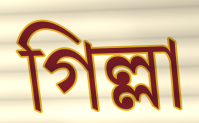
গিল্লা